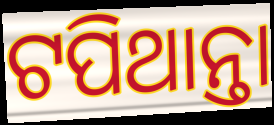
ଟପିଥାନ୍ତା